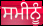
ਸਮੀਨੂੰ